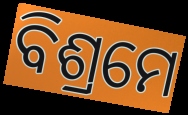
ବିଶ୍ରମେ